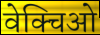
वेक्चिओ